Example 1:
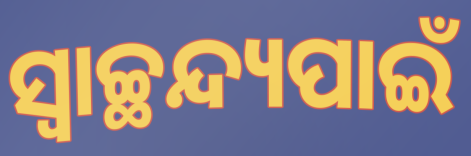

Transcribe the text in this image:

ସ୍ୱାଚ୍ଛନ୍ଦ୍ୟପାଇଁ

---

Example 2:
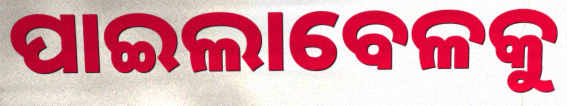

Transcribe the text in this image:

ପାଇଲାବେଳକୁ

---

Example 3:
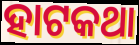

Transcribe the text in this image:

ହାଟକଥା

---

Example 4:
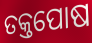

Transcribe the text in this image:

ତକ୍ତପୋଷ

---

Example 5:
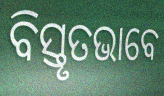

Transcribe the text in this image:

ବିସ୍ତୃତଭାବେ